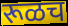
रूळच